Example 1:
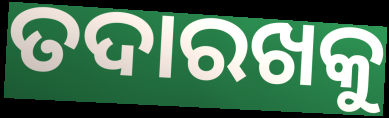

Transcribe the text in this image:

ତଦାରଖକୁ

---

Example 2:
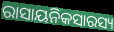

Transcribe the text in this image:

ରାସାୟନିକସାରସ୍ୟ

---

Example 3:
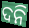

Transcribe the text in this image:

ଦନି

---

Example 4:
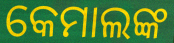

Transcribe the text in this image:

କେମାଲଙ୍କ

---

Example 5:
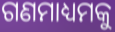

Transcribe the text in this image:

ଗଣମାଧ୍ୟମକୁ